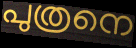
പുത്രനെ